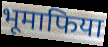
भूमाफिया